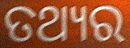
ତଥ୍ୟର